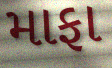
માફા